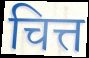
चित्त